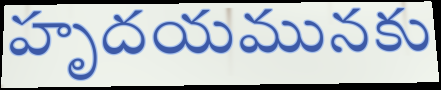
హృదయమునకు